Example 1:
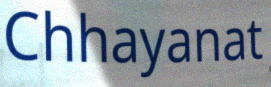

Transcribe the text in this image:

Chhayanat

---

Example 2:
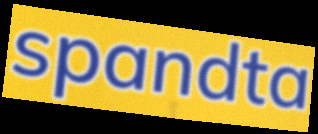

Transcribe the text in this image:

spandta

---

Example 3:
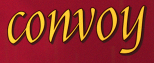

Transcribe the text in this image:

convoy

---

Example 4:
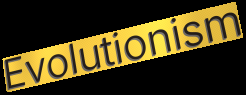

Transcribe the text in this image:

Evolutionism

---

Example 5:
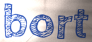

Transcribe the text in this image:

bort